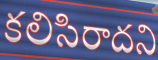
కలిసిరాదని